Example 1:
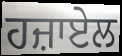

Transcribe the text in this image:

ਹਜ਼ਾਏਲ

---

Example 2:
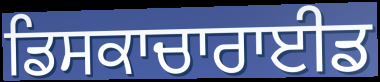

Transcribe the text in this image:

ਡਿਸਕਾਚਾਰਾਈਡ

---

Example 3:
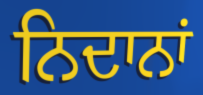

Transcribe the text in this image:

ਨਿਦਾਨਾਂ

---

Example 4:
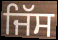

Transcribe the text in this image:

ਜਿੱਸ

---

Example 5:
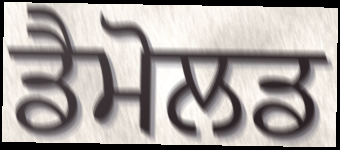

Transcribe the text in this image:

ਡੈਮੋਲਡ